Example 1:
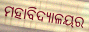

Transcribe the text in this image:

ମହାବିଦ୍ୟାଳୟର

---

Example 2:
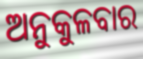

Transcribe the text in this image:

ଅନୁକୁଳବାର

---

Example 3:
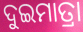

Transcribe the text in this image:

ଦୁଇମାତ୍ରା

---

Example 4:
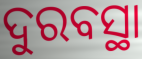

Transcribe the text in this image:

ଦୁରବସ୍ଥା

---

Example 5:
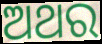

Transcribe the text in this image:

ଅଥର